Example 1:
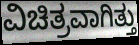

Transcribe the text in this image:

ವಿಚಿತ್ರವಾಗಿತ್ತು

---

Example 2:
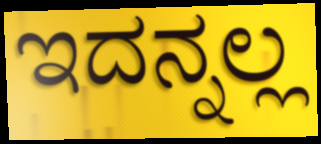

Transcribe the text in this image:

ಇದನ್ನಲ್ಲ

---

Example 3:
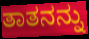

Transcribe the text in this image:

ತಾತನನ್ನು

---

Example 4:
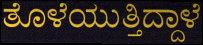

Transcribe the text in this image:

ತೊಳೆಯುತ್ತಿದ್ದಾಳೆ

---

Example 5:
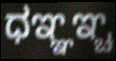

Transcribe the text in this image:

ಧಞ್ಞಞ್ಚ